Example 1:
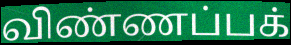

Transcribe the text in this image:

விண்ணப்பக்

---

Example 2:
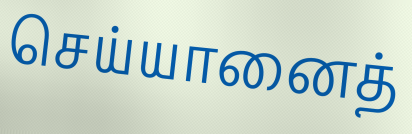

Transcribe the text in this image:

செய்யானைத்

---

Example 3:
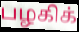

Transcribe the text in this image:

பழகிக்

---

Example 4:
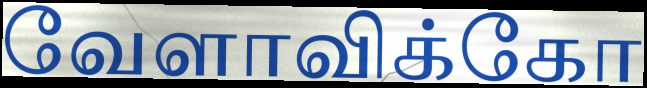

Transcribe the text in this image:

வேளாவிக்கோ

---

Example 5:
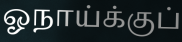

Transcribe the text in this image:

ஓநாய்க்குப்